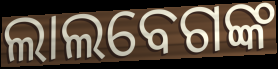
ଲାଲବେଗଙ୍କ